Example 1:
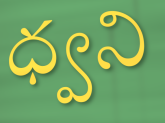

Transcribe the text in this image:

ధ్వని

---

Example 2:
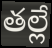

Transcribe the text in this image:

తల్లే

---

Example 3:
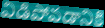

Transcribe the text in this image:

విడిపోవడానికి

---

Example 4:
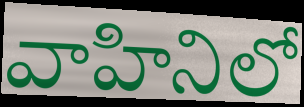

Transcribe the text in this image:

వాహినిలో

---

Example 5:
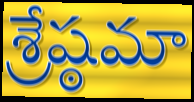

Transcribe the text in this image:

శ్రేష్ఠమా